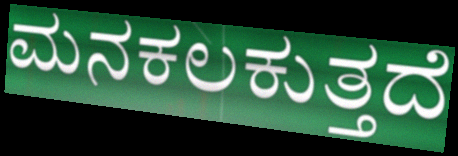
ಮನಕಲಕುತ್ತದೆ